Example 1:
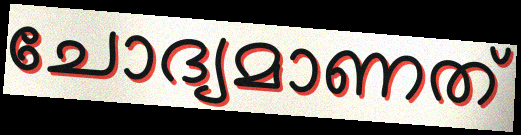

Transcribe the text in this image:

ചോദ്യമാണത്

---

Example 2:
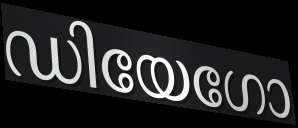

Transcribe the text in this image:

ഡിയേഗോ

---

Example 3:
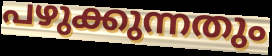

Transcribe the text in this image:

പഴുക്കുന്നതും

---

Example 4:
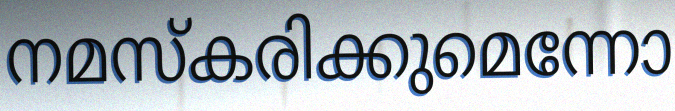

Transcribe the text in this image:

നമസ്കരിക്കുമെന്നോ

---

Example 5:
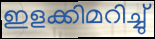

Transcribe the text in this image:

ഇളക്കിമറിച്ചു്